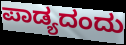
ಪಾಡ್ಯದಂದು